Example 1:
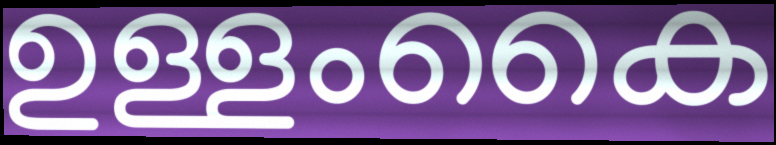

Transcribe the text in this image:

ഉള്ളംകൈ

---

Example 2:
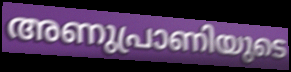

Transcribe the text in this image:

അണുപ്രാണിയുടെ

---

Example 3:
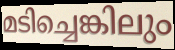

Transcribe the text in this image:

മടിച്ചെങ്കിലും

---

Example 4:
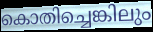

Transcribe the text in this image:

കൊതിച്ചെങ്കിലും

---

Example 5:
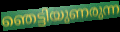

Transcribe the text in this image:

ഞെട്ടിയുണരുന്ന